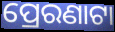
ପ୍ରେରଣାଟା